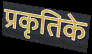
प्रकृतिके